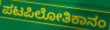
ಪಟಪಿಲೋತಿಕಾನಂ